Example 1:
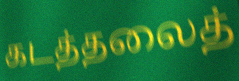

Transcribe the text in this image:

கடத்தலைத்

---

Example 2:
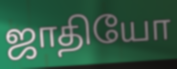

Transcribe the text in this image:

ஜாதியோ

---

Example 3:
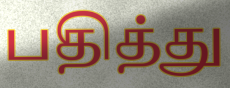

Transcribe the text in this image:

பதித்து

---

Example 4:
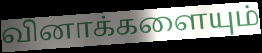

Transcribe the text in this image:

வினாக்களையும்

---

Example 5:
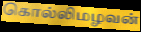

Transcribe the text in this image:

கொல்லிமழவன்